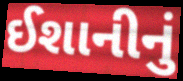
ઈશાનીનું